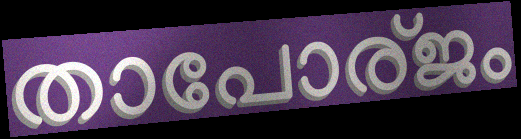
താപോര്ജം